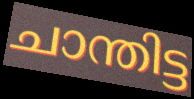
ചാന്തിട്ട